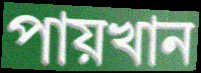
পায়খান